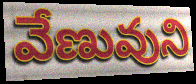
వేణువుని